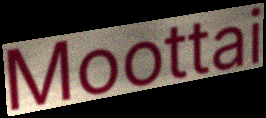
Moottai